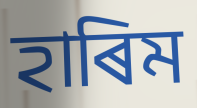
হাৰিম